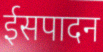
ईसपादन